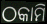
ଠକାମି